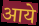
आये